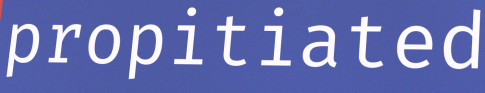
propitiated